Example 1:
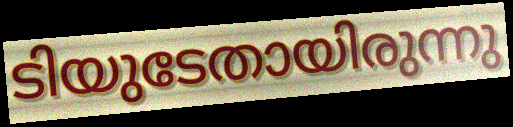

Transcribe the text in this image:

ടിയുടേതായിരുന്നു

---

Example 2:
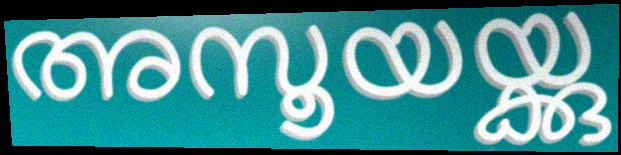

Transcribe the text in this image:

അസൂയയ്ക്കു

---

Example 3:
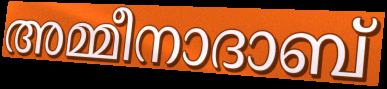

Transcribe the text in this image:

അമ്മീനാദാബ്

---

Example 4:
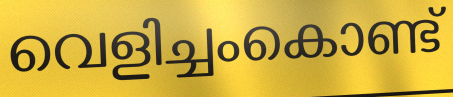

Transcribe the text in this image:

വെളിച്ചംകൊണ്ട്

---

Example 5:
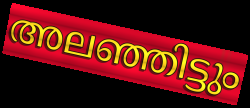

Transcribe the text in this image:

അലഞ്ഞിട്ടും